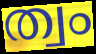
ത്വം